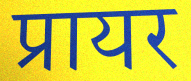
प्रायर